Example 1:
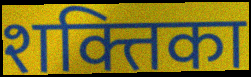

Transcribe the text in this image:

शक्तिका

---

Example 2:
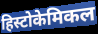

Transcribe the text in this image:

हिस्टोकेमिकल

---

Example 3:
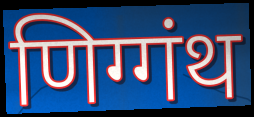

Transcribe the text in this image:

णिग्गंथ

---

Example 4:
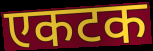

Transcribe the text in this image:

एकटक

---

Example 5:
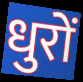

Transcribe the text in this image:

धुरों